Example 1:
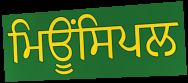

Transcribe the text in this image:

ਮਿਊਂਸਿਪਲ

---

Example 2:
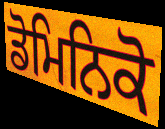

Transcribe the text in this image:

ਡੋਮਿਨਿਕੋ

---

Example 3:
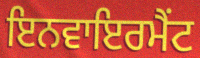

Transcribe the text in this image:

ਇਨਵਾਇਰਮੈਂਟ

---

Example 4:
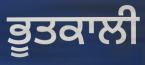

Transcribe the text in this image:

ਭੂਤਕਾਲੀ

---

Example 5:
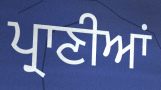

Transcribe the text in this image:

ਪ੍ਰਾਣੀਆਂ